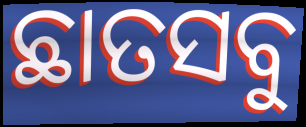
ଛାତସବୁ